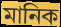
মানিক